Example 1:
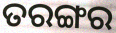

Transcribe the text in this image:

ତରଙ୍ଗର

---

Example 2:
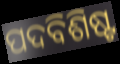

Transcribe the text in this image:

ପଦବିଶିଷ୍ଟ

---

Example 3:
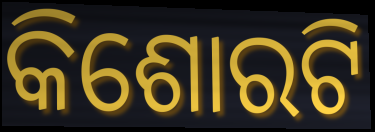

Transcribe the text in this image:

କିଶୋରଟି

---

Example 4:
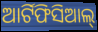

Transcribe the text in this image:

ଆର୍ଟିଫିସିଆଲ୍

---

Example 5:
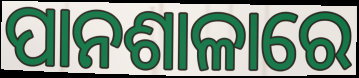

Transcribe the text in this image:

ପାନଶାଳାରେ